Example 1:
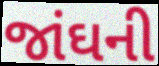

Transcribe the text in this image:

જાંઘની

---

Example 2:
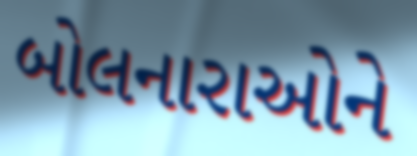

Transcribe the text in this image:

બોલનારાઓને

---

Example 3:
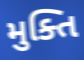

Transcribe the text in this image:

મુક્તિ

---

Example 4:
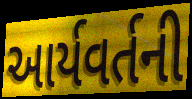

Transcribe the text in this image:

આર્યવર્તની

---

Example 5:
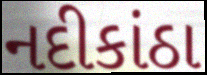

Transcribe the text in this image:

નદીકાંઠા